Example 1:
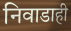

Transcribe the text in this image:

निवाडाही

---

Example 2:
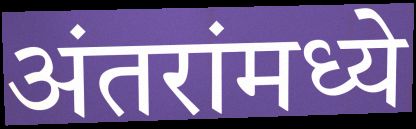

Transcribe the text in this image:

अंतरांमध्ये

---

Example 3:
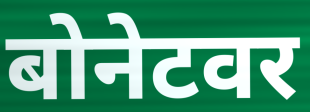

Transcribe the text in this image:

बोनेटवर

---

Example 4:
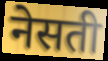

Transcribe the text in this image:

नेसती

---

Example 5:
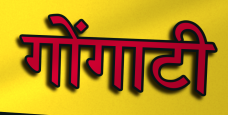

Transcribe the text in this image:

गोंगाटी